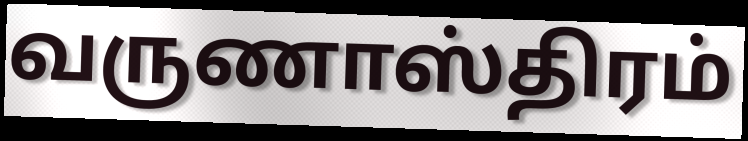
வருணாஸ்திரம்